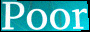
Poor